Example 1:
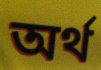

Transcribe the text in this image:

অর্থ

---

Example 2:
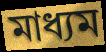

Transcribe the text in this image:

মাধ্যম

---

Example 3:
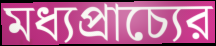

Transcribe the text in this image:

মধ্যপ্রাচ্যের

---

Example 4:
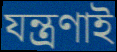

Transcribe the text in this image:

যন্ত্রণাই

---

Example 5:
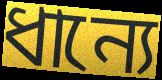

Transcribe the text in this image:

ধান্যে